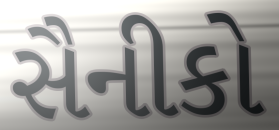
સૈનીકો